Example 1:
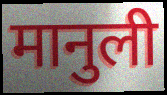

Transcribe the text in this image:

मानुली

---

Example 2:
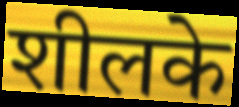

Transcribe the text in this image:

शीलके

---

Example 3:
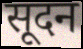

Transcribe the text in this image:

सूदन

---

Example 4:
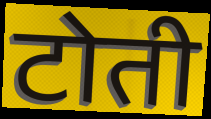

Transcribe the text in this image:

टोती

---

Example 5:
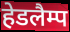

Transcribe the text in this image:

हेडलैम्प